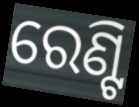
ରେଣ୍ଟି